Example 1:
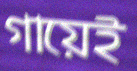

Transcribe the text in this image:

গায়েই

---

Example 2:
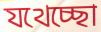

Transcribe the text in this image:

যথেচ্ছো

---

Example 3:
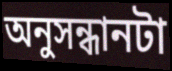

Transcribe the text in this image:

অনুসন্ধানটা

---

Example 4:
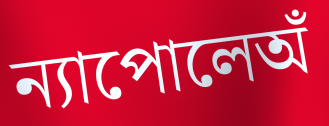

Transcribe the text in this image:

ন্যাপোলেঅঁ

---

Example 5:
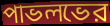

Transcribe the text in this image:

পাভলভের